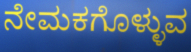
ನೇಮಕಗೊಳ್ಳುವ